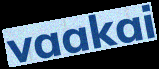
vaakai